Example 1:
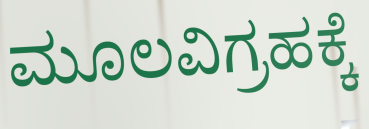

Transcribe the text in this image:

ಮೂಲವಿಗ್ರಹಕ್ಕೆ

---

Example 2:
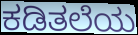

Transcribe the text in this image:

ಕಡಿತಲೆಯ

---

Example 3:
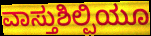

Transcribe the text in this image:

ವಾಸ್ತುಶಿಲ್ಪಿಯೂ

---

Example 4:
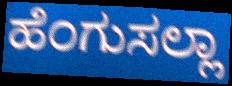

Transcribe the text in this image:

ಹೆಂಗುಸಲ್ಲಾ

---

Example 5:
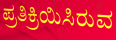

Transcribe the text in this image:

ಪ್ರತಿಕ್ರಿಯಿಸಿರುವ